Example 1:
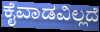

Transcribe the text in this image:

ಕೈವಾಡವಿಲ್ಲದೆ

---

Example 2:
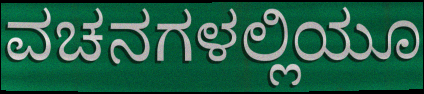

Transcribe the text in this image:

ವಚನಗಳಲ್ಲಿಯೂ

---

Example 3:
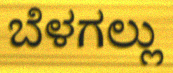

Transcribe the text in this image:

ಬೆಳಗಲ್ಲು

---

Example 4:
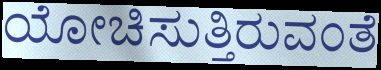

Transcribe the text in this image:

ಯೋಚಿಸುತ್ತಿರುವಂತೆ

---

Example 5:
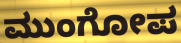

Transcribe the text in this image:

ಮುಂಗೋಪ